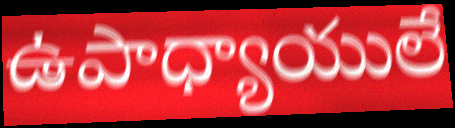
ఉపాధ్యాయులే